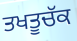
ਤਖਤੂਚੱਕ